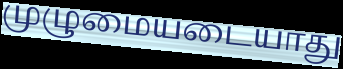
முழுமையடையாது